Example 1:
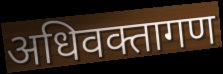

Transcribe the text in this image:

अधिवक्तागण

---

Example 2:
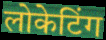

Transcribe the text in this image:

लोकेटिंग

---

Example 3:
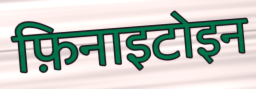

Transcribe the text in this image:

फ़िनाइटोइन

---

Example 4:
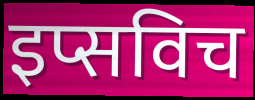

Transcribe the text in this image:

इप्सविच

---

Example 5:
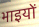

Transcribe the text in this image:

भाइयों